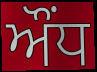
ਔਂਧ